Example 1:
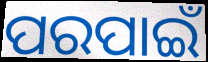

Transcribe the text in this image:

ପରପାଇଁ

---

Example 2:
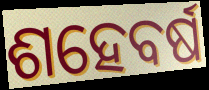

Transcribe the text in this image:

ଶହେବର୍ଷ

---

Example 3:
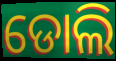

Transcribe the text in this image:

ଡୋଲି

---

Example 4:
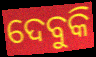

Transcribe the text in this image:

ଦେବୁକି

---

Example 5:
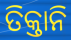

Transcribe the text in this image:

ତିକ୍ତାନି